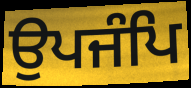
ਉਪਜੰਪਿ